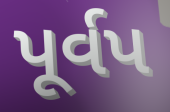
પૂર્વપ